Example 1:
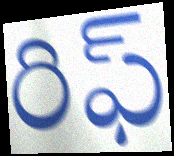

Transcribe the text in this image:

రిఫ్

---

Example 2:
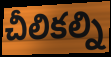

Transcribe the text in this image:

చీలికల్ని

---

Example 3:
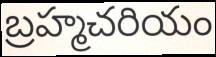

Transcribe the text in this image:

బ్రహ్మచరియం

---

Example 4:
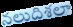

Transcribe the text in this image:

నలుదిశలా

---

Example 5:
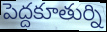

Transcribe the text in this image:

పెద్దకూతుర్ని